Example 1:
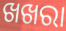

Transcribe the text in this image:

ଖଖରା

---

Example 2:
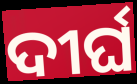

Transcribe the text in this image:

ଦୀର୍ଘ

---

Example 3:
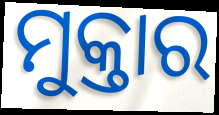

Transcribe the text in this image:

ମୁକ୍ତାର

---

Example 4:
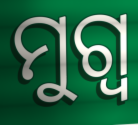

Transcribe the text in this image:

ମୁଗ୍ୱ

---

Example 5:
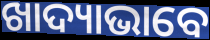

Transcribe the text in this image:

ଖାଦ୍ୟାଭାବେ